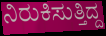
ನಿರುಕಿಸುತ್ತಿದ್ದ